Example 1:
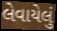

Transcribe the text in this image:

લેવાયેલું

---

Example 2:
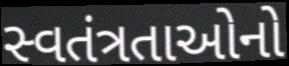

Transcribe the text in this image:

સ્વતંત્રતાઓનો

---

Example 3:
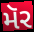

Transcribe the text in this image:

મૅર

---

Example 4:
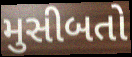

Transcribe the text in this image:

મુસીબતો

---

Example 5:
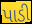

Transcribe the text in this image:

પાડી